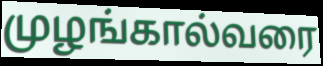
முழங்கால்வரை